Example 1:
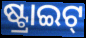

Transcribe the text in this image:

ଷ୍ଟ୍ରାଇଟ୍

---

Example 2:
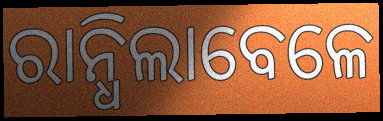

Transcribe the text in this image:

ରାନ୍ଧିଲାବେଳେ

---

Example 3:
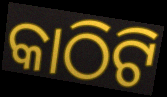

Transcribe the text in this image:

କାଠିଟି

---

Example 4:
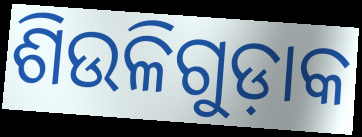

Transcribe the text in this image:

ଶିଉଳିଗୁଡ଼ାକ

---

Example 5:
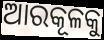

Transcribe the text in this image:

ଆରକୂଳକୁ